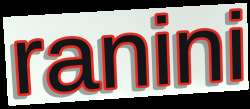
ranini